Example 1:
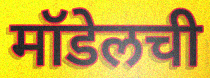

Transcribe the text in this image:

मॉडेलची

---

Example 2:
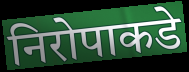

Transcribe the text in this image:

निरोपाकडे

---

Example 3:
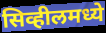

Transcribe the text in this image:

सिव्हीलमध्ये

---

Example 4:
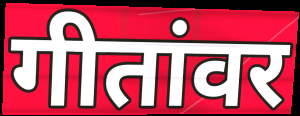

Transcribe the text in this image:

गीतांवर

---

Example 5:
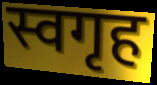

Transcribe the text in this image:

स्वगृह